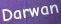
Darwan